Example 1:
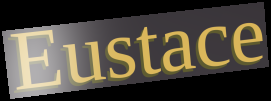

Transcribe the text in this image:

Eustace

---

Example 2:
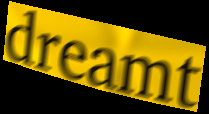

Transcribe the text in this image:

dreamt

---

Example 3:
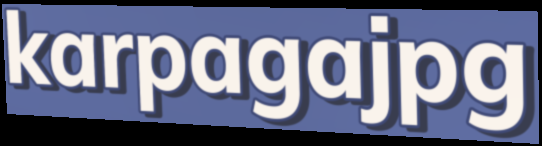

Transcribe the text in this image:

karpagajpg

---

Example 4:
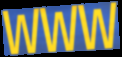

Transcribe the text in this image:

WWW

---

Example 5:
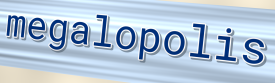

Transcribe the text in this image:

megalopolis